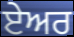
ਏਅਰ